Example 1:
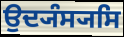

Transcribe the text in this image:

ਉਦ੍ਯੰਸ੍ਯਸਿ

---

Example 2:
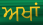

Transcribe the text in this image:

ਅਖਾਂ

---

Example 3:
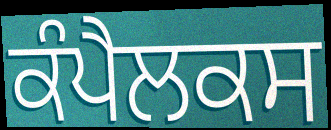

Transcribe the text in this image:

ਕੰਪੈਲਕਸ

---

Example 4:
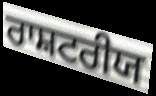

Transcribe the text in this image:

ਰਾਸ਼ਟਰੀਯ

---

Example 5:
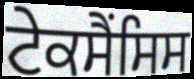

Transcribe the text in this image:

ਟੇਕਸੈਂਸਿਸ